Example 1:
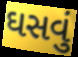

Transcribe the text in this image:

ઘસવું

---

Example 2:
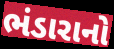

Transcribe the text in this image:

ભંડારાનો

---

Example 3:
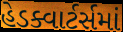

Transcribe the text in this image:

હેડક્વાર્ટર્સમાં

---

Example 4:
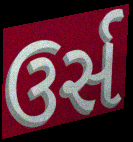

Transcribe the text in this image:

ઉર્સ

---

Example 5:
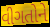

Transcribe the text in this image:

વીગતોને